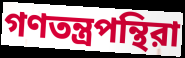
গণতন্ত্রপন্থিরা